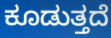
ಕೂಡುತ್ತದೆ